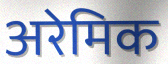
अरेमिक